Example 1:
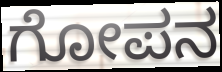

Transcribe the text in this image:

ಗೋಪನ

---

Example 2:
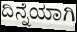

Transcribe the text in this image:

ದಿನ್ನೆಯಾಗಿ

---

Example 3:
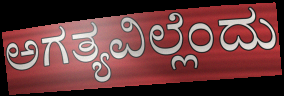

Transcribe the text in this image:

ಅಗತ್ಯವಿಲ್ಲೆಂದು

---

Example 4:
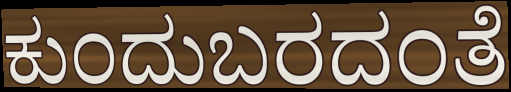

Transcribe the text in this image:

ಕುಂದುಬರದಂತೆ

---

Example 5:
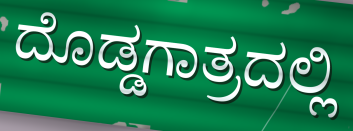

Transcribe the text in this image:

ದೊಡ್ಡಗಾತ್ರದಲ್ಲಿ